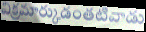
విక్రమార్కుడంతటివాడు